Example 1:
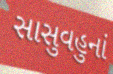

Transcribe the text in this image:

સાસુવહુનાં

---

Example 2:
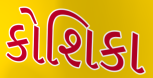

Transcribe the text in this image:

કોશિકા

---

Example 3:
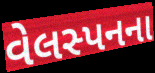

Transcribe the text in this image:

વેલસ્પનના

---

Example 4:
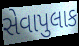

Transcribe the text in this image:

સેવાપુલાક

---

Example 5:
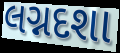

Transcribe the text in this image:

લગ્નદશા